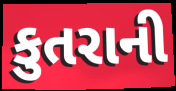
કુતરાની